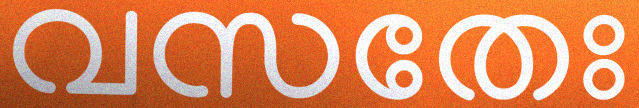
വസതേഃ